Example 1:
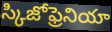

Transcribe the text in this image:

స్కిజోఫ్రెనియా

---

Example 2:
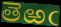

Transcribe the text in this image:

తెఱఁ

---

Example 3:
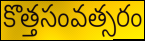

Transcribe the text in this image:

కొత్తసంవత్సరం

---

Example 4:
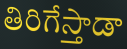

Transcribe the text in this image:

తిరిగేస్తాడా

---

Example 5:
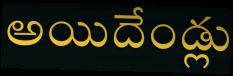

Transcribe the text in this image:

అయిదేండ్లు